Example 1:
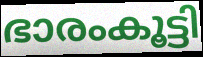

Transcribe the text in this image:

ഭാരംകൂട്ടി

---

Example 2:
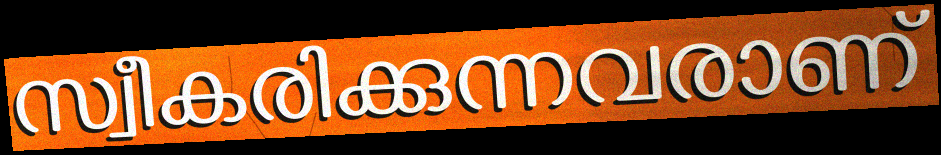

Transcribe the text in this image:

സ്വീകരിക്കുന്നവരാണ്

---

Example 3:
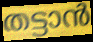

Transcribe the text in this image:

തട്ടാൻ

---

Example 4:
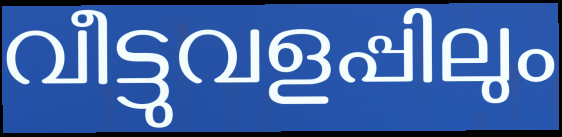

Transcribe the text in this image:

വീട്ടുവളപ്പിലും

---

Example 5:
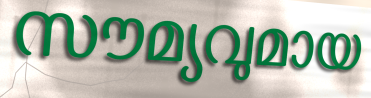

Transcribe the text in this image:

സൗമ്യവുമായ